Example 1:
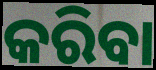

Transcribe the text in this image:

କରିବା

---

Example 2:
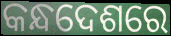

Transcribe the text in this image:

କନ୍ଧଦେଶରେ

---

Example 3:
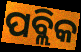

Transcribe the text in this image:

ପବ୍ଲିକ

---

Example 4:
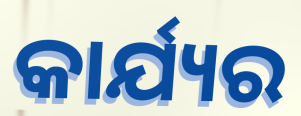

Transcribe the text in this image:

କାର୍ଯ୍ୟର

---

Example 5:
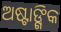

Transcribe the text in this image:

ଅଷ୍ଟାଙ୍ଗିକ